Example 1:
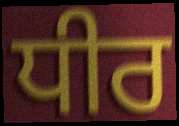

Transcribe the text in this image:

ਧੀਰ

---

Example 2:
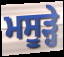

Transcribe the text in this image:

ਮਸੂੜ੍ਹੇ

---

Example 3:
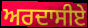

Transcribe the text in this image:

ਅਰਦਾਸੀਏ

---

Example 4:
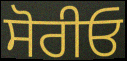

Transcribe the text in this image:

ਸੋਰੀਓ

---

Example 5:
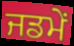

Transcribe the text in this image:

ਜਡਮੇਂ